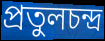
প্রতুলচন্দ্র